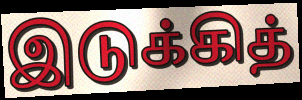
இடுக்கித்